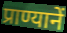
प्राण्यानें